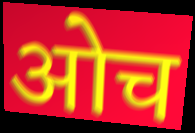
ओच